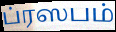
ப்ரஸபம்